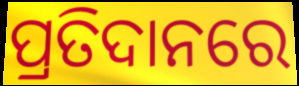
ପ୍ରତିଦାନରେ